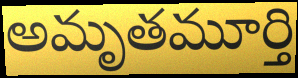
అమృతమూర్తి